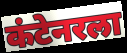
कंटेनरला